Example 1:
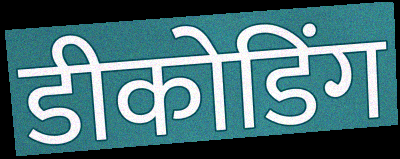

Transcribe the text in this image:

डीकोडिंग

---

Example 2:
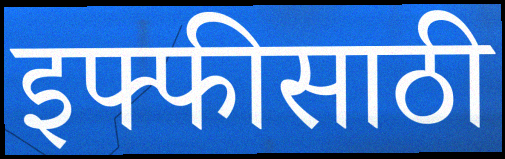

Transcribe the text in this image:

इफ्फीसाठी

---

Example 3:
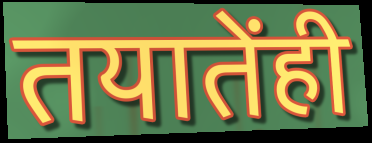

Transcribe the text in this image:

तयातेंही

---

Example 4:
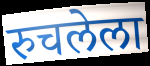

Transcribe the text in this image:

रुचलेला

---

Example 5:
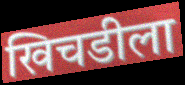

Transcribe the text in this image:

खिचडीला